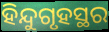
ହିନ୍ଦୁଗୃହସ୍ଥର